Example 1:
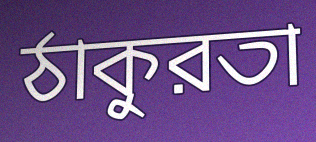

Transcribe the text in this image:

ঠাকুরতা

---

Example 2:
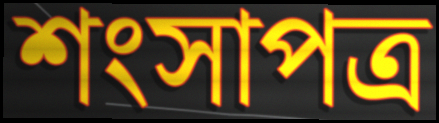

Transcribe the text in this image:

শংসাপত্র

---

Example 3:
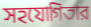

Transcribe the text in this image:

সহযোগিতার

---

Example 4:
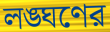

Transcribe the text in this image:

লঙ্ঘণের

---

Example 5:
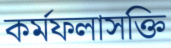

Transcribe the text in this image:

কর্মফলাসক্তি